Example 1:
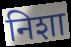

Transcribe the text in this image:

निशा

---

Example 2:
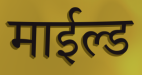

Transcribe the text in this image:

माईल्ड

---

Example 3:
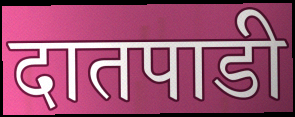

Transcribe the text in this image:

दातपाडी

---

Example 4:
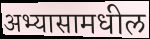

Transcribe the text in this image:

अभ्यासामधील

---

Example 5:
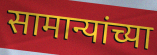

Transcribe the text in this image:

सामान्यांच्या